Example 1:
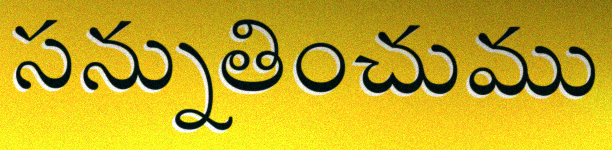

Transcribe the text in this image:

సన్నుతించుము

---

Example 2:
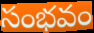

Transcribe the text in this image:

సంభవం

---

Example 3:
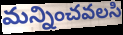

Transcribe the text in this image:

మన్నించవలసి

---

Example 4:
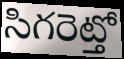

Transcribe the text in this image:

సిగరెట్తో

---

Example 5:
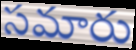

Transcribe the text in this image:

సమారు